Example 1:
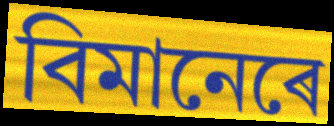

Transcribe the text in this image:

বিমানেৰে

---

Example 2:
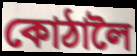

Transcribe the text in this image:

কোঠালৈ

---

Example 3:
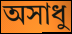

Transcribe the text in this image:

অসাধু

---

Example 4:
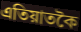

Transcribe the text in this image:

এতিয়াতকৈ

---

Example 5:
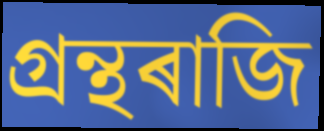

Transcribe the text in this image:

গ্ৰন্থৰাজি